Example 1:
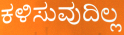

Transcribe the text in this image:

ಕಳಿಸುವುದಿಲ್ಲ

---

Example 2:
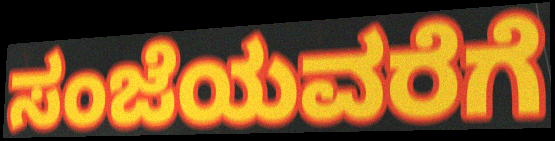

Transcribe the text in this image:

ಸಂಜೆಯವರೆಗೆ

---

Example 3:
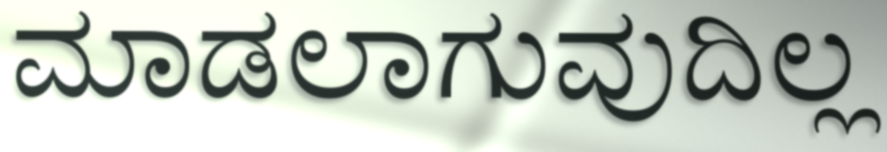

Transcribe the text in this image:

ಮಾಡಲಾಗುವುದಿಲ್ಲ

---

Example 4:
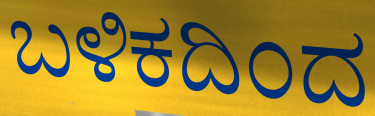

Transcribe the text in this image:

ಬಳಿಕದಿಂದ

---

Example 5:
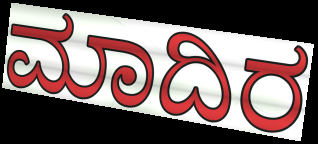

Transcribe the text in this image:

ಮಾದಿರ